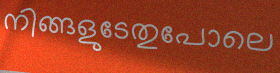
നിങ്ങളുടേതുപോലെ